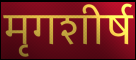
मृगशीर्ष